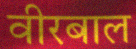
वीरबाल